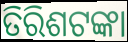
ତିରିଶଟଙ୍କା